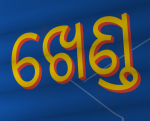
ଖେଣ୍ଡ